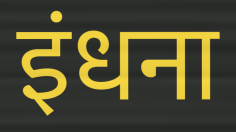
इंधना